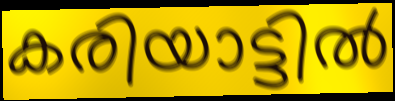
കരിയാട്ടിൽ